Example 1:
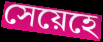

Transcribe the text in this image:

সেয়েহে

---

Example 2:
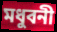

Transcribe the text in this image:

মধুবনী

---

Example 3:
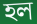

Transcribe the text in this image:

হল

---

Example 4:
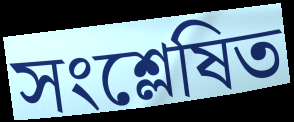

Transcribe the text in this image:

সংশ্লেষিত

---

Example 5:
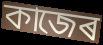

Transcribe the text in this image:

কাজেৰ